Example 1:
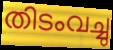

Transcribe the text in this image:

തിടംവച്ചു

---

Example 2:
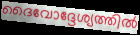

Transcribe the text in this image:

ദൈവോദ്ദേശ്യത്തിൽ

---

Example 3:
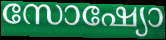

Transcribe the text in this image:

സോഷ്യോ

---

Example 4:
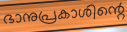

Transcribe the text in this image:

ഭാനുപ്രകാശിന്റെ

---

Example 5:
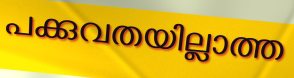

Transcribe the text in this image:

പക്കുവതയില്ലാത്ത